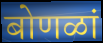
बोणळां